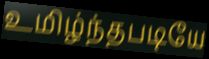
உமிழ்ந்தபடியே